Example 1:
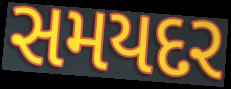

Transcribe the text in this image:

સમયદર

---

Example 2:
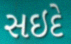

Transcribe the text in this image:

સઇદે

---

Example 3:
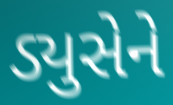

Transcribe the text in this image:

ડ્યુસેને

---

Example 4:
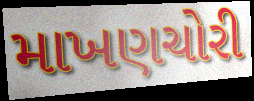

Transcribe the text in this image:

માખણચોરી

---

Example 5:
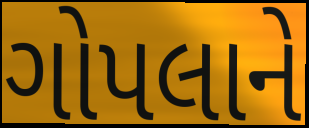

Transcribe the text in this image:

ગોપલાને